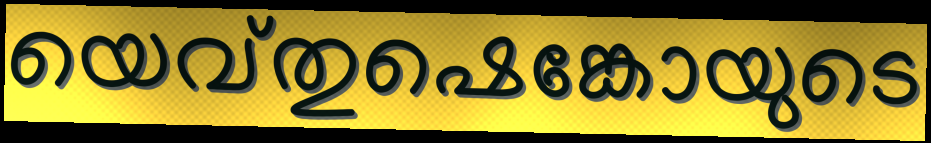
യെവ്തുഷെങ്കോയുടെ